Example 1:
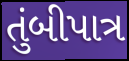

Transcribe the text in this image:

તુંબીપાત્ર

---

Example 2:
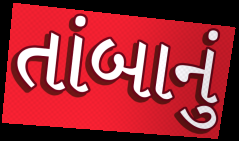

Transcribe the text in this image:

તાંબાનું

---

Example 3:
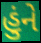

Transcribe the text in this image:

હુંને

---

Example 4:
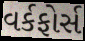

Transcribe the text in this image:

વર્કફોર્સ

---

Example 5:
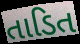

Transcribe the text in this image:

તાડિત